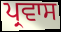
ਪ੍ਰਵਾਸ